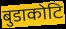
बुडाकोटि